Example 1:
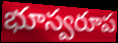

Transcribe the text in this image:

భూస్వరూప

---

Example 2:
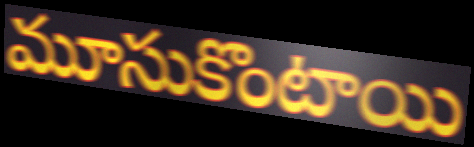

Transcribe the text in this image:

మూసుకొంటాయి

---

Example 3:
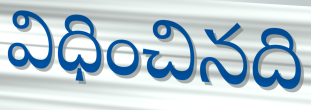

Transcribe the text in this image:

విధించినది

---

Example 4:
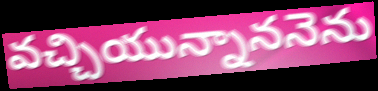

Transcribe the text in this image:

వచ్చియున్నాననెను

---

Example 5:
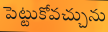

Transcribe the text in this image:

పెట్టుకోవచ్చును